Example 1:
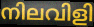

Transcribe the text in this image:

നിലവിളി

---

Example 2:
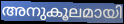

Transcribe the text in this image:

അനുകൂലമായി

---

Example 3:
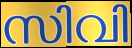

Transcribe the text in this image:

സിവി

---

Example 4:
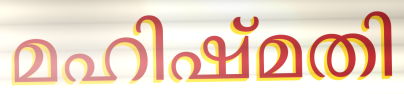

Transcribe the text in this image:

മഹിഷ്മതി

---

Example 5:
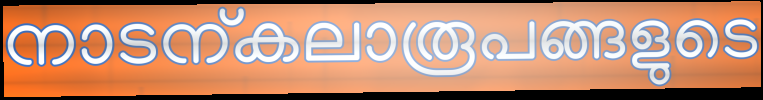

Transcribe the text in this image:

നാടന്കലാരൂപങ്ങളുടെ